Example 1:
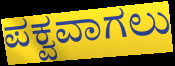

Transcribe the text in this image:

ಪಕ್ವವಾಗಲು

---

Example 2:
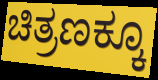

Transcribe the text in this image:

ಚಿತ್ರಣಕ್ಕೂ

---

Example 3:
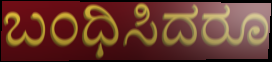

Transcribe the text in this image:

ಬಂಧಿಸಿದರೂ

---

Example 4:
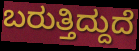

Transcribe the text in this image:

ಬರುತ್ತಿದ್ದುದೆ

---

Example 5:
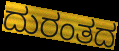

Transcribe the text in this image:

ದುರಂತದ